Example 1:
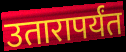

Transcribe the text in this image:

उतारापर्यंत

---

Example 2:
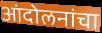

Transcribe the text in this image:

आंदोलनांचा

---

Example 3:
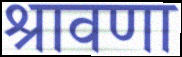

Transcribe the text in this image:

श्रावणा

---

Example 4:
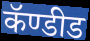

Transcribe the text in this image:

कॅण्डीड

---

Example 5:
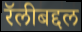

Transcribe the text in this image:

रॅलीबद्दल